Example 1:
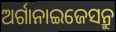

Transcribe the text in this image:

ଅର୍ଗାନାଇଜେସନ୍ରୁ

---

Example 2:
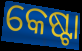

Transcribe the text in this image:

କେଷ୍ଟା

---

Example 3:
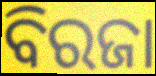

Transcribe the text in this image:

ବିରଜା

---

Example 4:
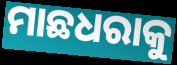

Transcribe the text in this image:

ମାଛଧରାକୁ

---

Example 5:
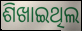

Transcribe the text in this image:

ଶିଖାଇଥିଲ